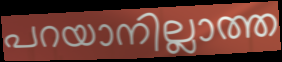
പറയാനില്ലാത്ത